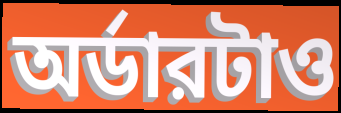
অর্ডারটাও